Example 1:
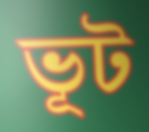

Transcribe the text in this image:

ভূট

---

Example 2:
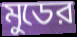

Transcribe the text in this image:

মুডের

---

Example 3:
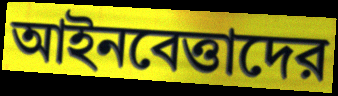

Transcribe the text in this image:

আইনবেত্তাদের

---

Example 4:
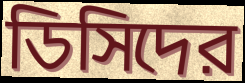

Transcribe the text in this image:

ডিসিদের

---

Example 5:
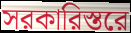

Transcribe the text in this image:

সরকারিস্তরে